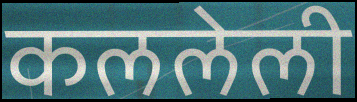
कललेली